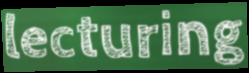
lecturing